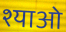
श्याओ